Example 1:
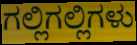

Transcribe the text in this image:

ಗಲ್ಲಿಗಲ್ಲಿಗಳು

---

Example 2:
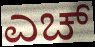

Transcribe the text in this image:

ಎಚ್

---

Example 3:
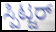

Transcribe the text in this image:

ಸ್ಪಿಟ್ಜರ್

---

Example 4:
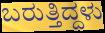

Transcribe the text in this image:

ಬರುತ್ತಿದ್ದಳು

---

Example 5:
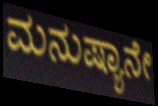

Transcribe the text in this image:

ಮನುಷ್ಯಾನೇ